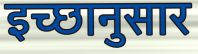
इच्छानुसार